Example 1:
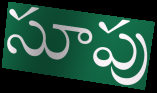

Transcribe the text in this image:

సూపు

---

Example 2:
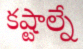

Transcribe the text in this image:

కష్టాల్నే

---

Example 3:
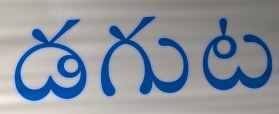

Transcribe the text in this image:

డగుట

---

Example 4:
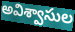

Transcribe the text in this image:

అవిశ్వాసుల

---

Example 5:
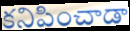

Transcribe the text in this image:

కనిపించాడా